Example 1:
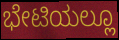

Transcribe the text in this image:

ಭೇಟಿಯಲ್ಲೂ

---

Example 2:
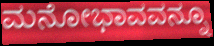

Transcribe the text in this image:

ಮನೋಭಾವವನ್ನೂ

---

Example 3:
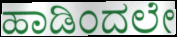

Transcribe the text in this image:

ಹಾಡಿಂದಲೇ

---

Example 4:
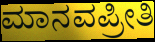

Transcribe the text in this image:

ಮಾನವಪ್ರೀತಿ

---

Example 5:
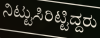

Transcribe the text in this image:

ನಿಟ್ಟುಸಿರಿಟ್ಟಿದ್ದರು